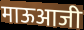
माऊआजी